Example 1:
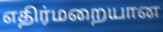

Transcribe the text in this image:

எதிர்மறையான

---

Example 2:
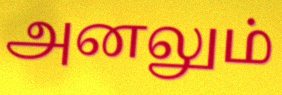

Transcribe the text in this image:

அனலும்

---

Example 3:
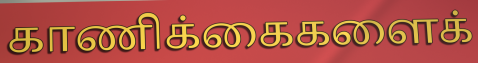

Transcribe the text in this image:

காணிக்கைகளைக்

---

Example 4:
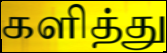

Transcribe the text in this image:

களித்து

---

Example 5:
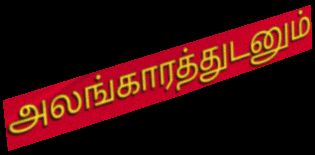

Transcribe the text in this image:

அலங்காரத்துடனும்